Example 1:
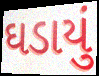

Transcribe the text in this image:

ઘડાયું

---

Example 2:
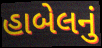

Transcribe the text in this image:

હાબેલનું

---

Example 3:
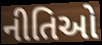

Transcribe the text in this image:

નીતિઓ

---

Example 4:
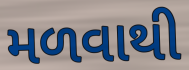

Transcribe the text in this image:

મળવાથી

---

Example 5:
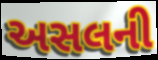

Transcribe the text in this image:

અસલની